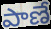
పాణే